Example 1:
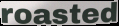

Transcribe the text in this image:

roasted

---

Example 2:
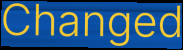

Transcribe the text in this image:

Changed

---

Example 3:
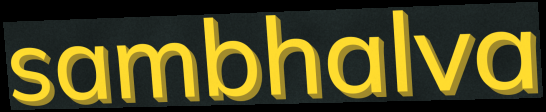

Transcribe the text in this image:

sambhalva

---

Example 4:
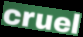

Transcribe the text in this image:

cruel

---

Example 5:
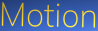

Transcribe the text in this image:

Motion